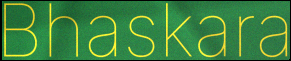
Bhaskara